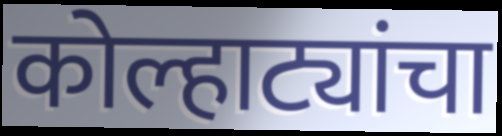
कोल्हाट्यांचा